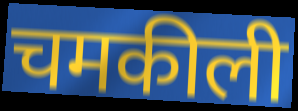
चमकीली